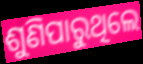
ଶୁଣିପାରୁଥିଲେ